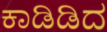
ಕಾಡಿಡಿದ